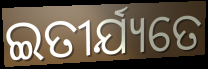
ଇତୀର୍ଯ୍ୟତେ